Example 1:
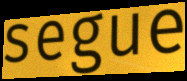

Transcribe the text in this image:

segue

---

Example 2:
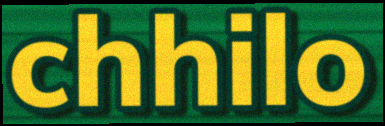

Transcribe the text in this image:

chhilo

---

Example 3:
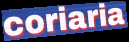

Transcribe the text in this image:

coriaria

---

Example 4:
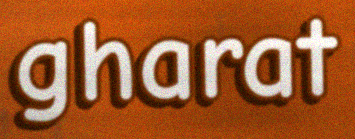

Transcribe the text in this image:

gharat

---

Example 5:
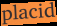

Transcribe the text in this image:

placid